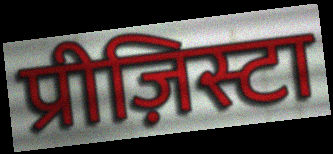
प्रीज़िस्टा